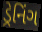
ડ્રેનિંગ